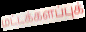
மட்டக்களப்புக்